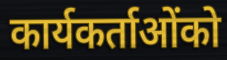
कार्यकर्ताओंको